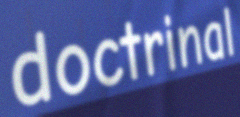
doctrinal